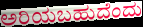
ಅರಿಯಬಹುದೆಂದು